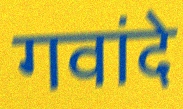
गवांदे